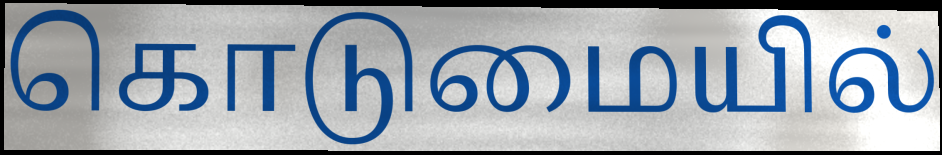
கொடுமையில்